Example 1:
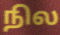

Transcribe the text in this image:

நில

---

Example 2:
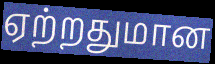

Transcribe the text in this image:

ஏற்றதுமான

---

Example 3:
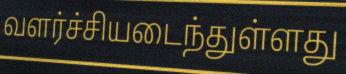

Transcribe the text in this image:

வளர்ச்சியடைந்துள்ளது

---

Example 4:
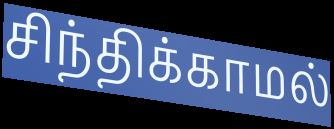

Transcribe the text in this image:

சிந்திக்காமல்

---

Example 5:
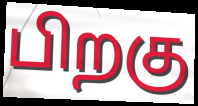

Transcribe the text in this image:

பிறகு